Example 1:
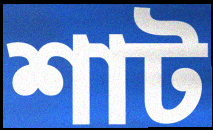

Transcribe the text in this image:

শাট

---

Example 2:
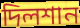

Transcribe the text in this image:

দিলশান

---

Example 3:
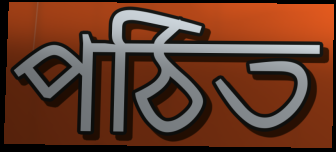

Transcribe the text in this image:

পঠিত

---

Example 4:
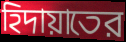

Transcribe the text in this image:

হিদায়াতের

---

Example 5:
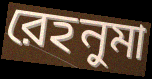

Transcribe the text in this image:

রেহনুমা